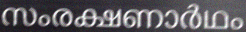
സംരക്ഷണാർഥം